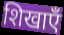
शिखाएँ